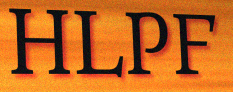
HLPF